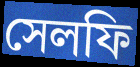
সেলফি